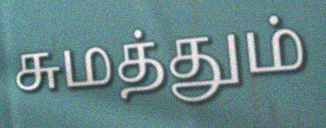
சுமத்தும்